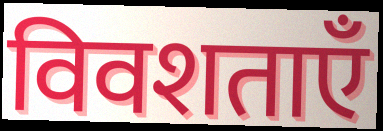
विवशताएँ